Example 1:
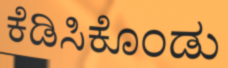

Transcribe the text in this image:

ಕೆಡಿಸಿಕೊಂಡು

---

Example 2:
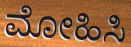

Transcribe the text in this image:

ಮೋಹಿಸಿ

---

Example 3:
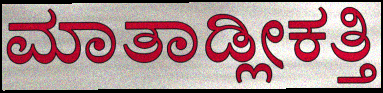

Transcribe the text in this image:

ಮಾತಾಡ್ಲೀಕತ್ತಿ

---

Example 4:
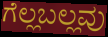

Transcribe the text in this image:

ಗೆಲ್ಲಬಲ್ಲವು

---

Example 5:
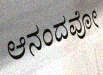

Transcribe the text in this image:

ಆನಂದವೋ